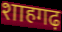
शाहगढ़